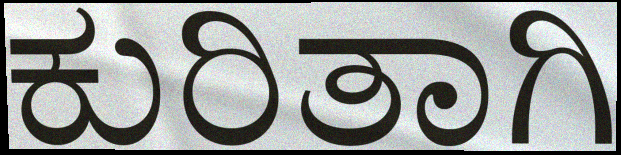
ಕುರಿತಾಗಿ